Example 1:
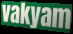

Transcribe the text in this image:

vakyam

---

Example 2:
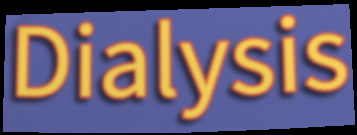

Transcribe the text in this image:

Dialysis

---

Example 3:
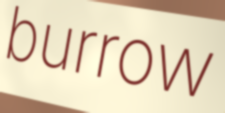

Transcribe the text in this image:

burrow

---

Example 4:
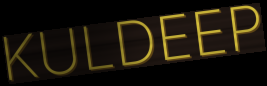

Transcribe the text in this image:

KULDEEP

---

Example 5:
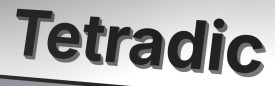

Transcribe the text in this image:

Tetradic